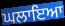
ਘਲਾਇਆ